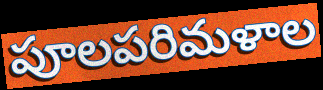
పూలపరిమళాల